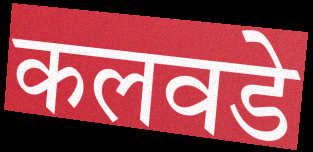
कलवडे